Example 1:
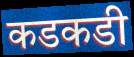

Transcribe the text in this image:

कडकडी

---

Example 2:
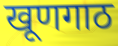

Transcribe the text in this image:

खूणगाठ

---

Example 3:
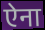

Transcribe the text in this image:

ऐना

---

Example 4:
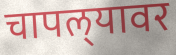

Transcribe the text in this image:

चापल्यावर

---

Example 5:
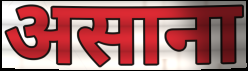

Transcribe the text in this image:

असाना